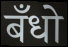
बँधो